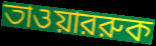
তাওয়াররুক